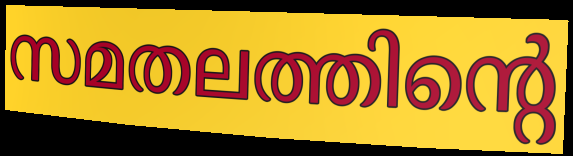
സമതലത്തിന്റെ